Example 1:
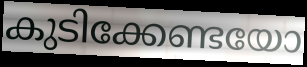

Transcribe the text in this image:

കുടിക്കേണ്ടയോ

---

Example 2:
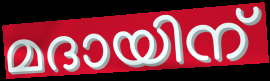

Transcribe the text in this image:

മദായിന്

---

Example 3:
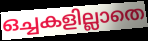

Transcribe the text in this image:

ഒച്ചകളില്ലാതെ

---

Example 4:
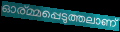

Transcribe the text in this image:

ഓര്മ്മപ്പെടുത്തലാണ്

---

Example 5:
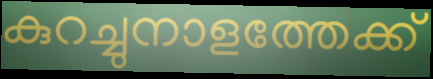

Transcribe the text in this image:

കുറച്ചുനാളത്തേക്ക്